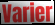
Varier